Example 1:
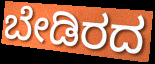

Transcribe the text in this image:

ಬೇಡಿರದ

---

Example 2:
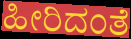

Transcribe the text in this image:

ಹೀರಿದಂತೆ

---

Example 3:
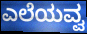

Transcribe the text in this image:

ಎಲೆಯವ್ವ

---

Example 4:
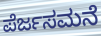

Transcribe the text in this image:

ಪೆರ್ಜಸಮನೆ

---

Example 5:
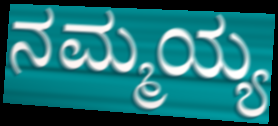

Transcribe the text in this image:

ನಮ್ಮಯ್ಯ